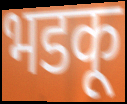
भडकू